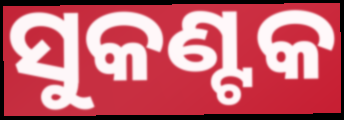
ସୁକଣ୍ଟକ